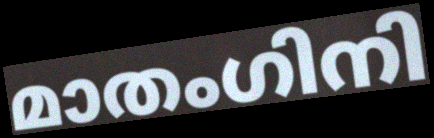
മാതംഗിനി